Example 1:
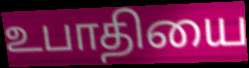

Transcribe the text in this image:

உபாதியை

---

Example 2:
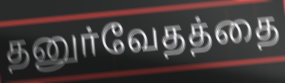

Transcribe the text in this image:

தனுர்வேதத்தை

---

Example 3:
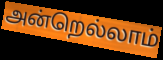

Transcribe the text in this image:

அன்றெல்லாம்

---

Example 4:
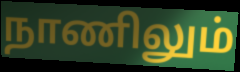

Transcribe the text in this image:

நாணிலும்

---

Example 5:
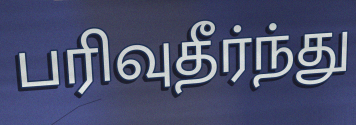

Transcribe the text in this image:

பரிவுதீர்ந்து